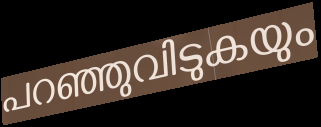
പറഞ്ഞുവിടുകയും